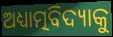
ଅଧ୍ୟାତ୍ମବିଦ୍ୟାକୁ